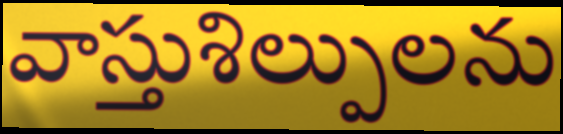
వాస్తుశిల్పులను